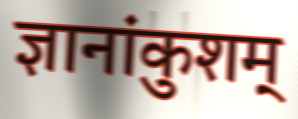
ज्ञानांकुशम्